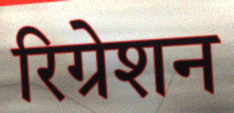
रिग्रेशन